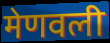
मेणवली